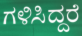
ಗಳಿಸಿದ್ದರೆ